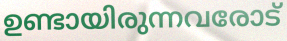
ഉണ്ടായിരുന്നവരോട്